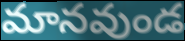
మానవుండ